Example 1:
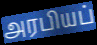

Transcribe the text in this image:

அரபியப்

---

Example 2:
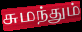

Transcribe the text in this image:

சுமந்தும்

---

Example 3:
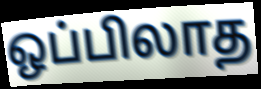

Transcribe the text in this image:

ஒப்பிலாத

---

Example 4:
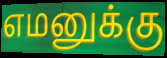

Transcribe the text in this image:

எமனுக்கு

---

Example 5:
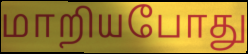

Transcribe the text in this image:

மாறியபோது